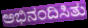
ಅಭಿನಂದಿಸಿತು